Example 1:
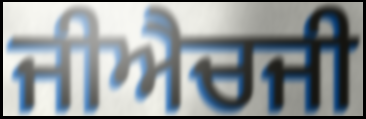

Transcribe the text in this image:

ਜੀਐਚਜੀ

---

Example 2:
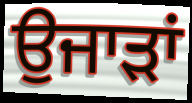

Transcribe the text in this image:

ਉਜਾੜਾਂ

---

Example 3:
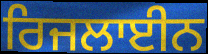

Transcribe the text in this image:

ਰਿਜਲਾਈਨ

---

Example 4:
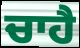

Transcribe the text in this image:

ਚਾਹੈ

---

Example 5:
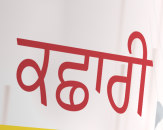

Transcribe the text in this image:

ਕਛਾਰੀ